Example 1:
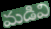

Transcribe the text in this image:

మడివి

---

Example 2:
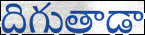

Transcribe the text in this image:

దిగుతాడా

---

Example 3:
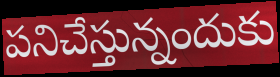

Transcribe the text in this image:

పనిచేస్తున్నందుకు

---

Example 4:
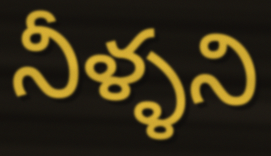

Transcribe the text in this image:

నీళ్ళని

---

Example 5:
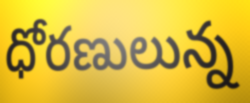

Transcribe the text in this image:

ధోరణులున్న